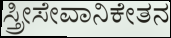
ಸ್ತ್ರೀಸೇವಾನಿಕೇತನ